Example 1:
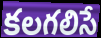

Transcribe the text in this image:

కలగలిసే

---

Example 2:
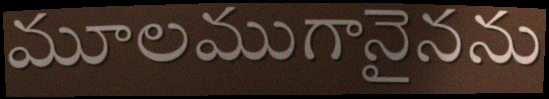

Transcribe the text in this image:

మూలముగానైనను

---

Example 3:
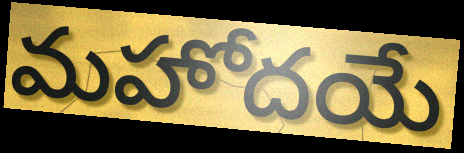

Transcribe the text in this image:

మహోదయే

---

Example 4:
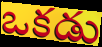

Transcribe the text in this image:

ఒకడు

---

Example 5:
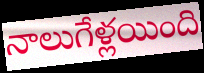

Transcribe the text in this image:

నాలుగేళ్లయింది